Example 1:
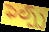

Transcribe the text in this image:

ఫెల్ప్స్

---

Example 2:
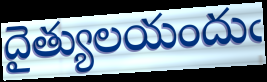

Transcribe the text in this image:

దైత్యులయందుఁ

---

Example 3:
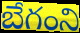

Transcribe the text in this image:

బేగంని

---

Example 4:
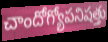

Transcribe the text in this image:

చాందోగ్యోపనిషత్తు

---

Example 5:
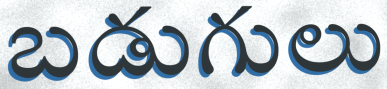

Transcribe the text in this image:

బడుగులు